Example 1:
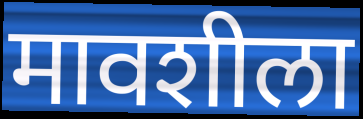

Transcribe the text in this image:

मावशीला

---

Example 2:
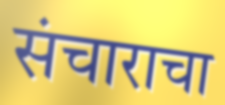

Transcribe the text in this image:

संचाराचा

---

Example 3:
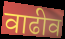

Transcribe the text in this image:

वाढीव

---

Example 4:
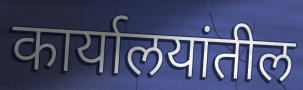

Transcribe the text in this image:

कार्यालयांतील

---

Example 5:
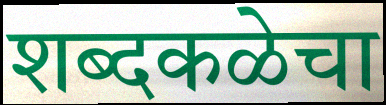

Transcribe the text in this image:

शब्दकळेचा